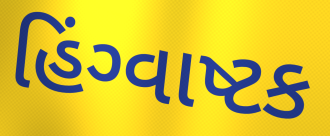
હિંગ્વાષ્ટક